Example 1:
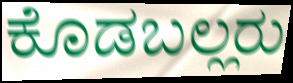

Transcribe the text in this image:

ಕೊಡಬಲ್ಲರು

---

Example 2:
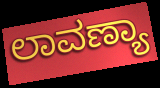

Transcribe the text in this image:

ಲಾವಣ್ಯಾ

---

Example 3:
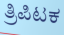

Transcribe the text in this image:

ತ್ರಿಪಿಟಕ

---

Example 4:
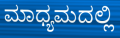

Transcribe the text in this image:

ಮಾಧ್ಯಮದಲ್ಲಿ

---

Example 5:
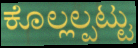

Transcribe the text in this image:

ಕೊಲ್ಲಲ್ಪಟ್ಟು